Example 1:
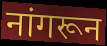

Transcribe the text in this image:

नांगरून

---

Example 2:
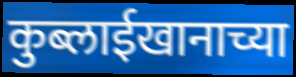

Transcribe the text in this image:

कुब्लाईखानाच्या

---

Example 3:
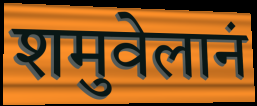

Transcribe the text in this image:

शमुवेलानं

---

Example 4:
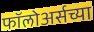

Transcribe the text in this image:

फॉलोअर्सच्या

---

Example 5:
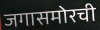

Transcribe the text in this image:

जगासमोरची